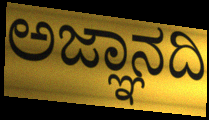
ಅಜ್ಞಾನದಿ